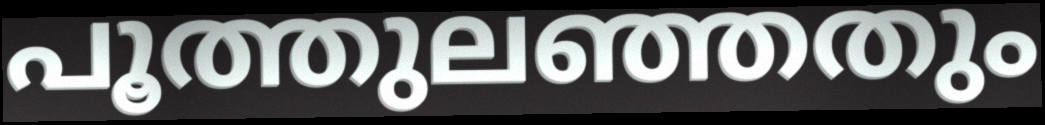
പൂത്തുലഞ്ഞതും